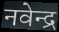
नवेन्द्र